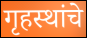
गृहस्थांचे